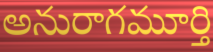
అనురాగమూర్తి